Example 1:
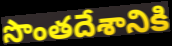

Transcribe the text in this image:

సొంతదేశానికి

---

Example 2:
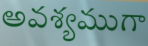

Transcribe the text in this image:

అవశ్యముగా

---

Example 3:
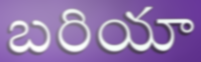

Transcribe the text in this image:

బరియా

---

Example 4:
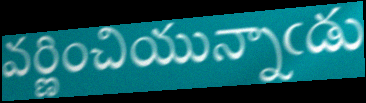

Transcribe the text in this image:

వర్ణించియున్నాఁడు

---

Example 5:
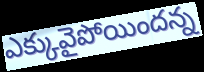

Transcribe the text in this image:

ఎక్కువైపోయిందన్న